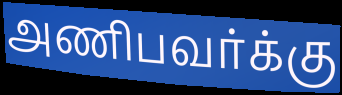
அணிபவர்க்கு